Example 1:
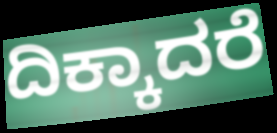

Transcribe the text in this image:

ದಿಕ್ಕಾದರೆ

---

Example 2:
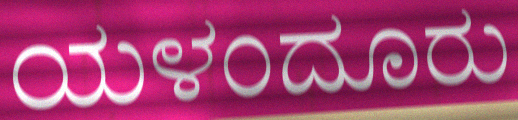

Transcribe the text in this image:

ಯಳಂದೂರು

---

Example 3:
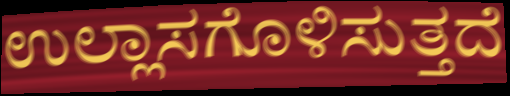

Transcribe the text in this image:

ಉಲ್ಲಾಸಗೊಳಿಸುತ್ತದೆ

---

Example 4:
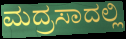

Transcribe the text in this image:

ಮದ್ರಸಾದಲ್ಲಿ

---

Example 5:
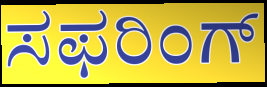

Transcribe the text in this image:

ಸಫರಿಂಗ್